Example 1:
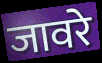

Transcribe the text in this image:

जावरे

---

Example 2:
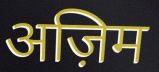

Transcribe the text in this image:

अज़िम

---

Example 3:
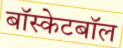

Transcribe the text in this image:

बॉस्केटबॉल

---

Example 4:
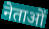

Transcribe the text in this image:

नेताओं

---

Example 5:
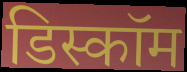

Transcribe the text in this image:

डिस्कॉम